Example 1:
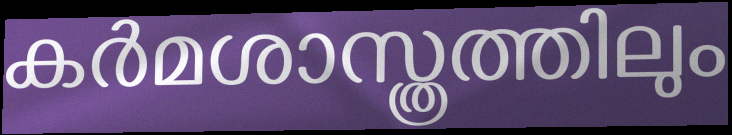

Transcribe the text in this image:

കർമശാസ്ത്രത്തിലും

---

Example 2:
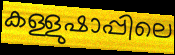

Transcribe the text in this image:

കള്ളുഷാപ്പിലെ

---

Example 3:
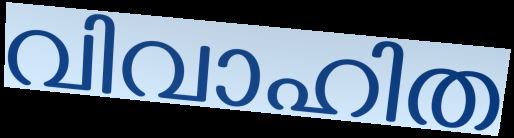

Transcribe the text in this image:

വിവാഹിത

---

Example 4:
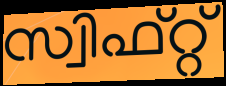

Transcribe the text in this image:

സ്വിഫ്റ്റ്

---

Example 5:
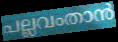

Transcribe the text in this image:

പല്ലവംതാൻ